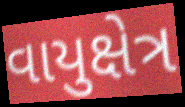
વાયુક્ષેત્ર